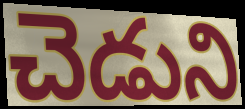
చెడుని